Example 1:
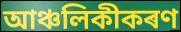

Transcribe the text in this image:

আঞ্চলিকীকৰণ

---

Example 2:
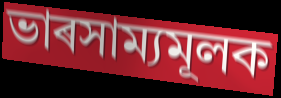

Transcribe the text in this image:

ভাৰসাম্যমূলক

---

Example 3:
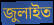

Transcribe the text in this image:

জুলাইত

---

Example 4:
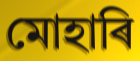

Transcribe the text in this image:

মোহাৰি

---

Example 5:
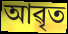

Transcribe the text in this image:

আৱৃত